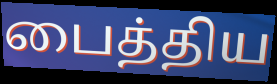
பைத்திய